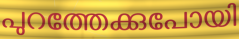
പുറത്തേക്കുപോയി